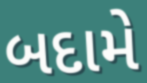
બદામે